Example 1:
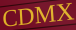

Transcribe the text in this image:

CDMX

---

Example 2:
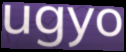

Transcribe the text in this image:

ugyo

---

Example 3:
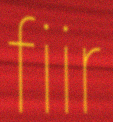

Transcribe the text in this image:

fiir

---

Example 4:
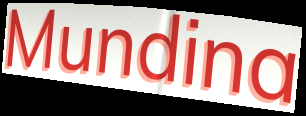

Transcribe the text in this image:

Mundina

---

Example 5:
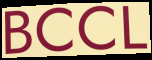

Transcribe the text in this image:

BCCL